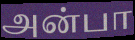
அன்பா